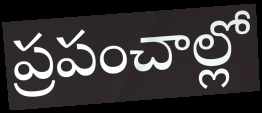
ప్రపంచాల్లో